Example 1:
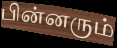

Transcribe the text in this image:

பின்னரும்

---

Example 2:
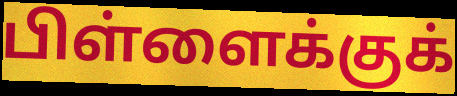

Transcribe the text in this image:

பிள்ளைக்குக்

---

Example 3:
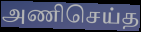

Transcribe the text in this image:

அணிசெய்த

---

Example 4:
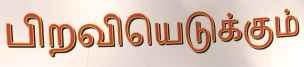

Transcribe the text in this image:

பிறவியெடுக்கும்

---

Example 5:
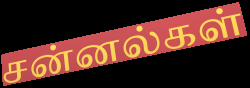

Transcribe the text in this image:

சன்னல்கள்